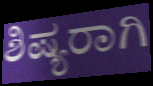
ಶಿಷ್ಯರಾಗಿ